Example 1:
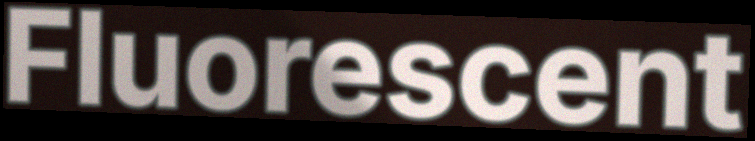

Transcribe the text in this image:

Fluorescent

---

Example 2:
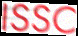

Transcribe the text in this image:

ISSC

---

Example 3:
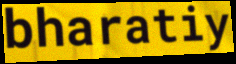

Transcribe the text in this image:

bharatiy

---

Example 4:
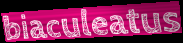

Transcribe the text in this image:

biaculeatus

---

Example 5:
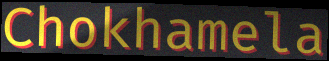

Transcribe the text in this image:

Chokhamela